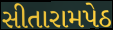
સીતારામપેઠ